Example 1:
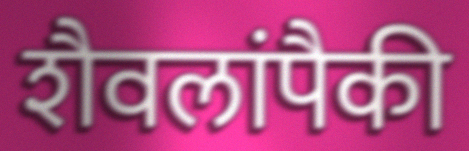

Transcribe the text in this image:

शैवलांपैकी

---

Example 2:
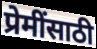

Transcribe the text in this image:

प्रेमींसाठी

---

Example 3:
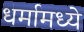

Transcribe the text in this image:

धर्मामध्ये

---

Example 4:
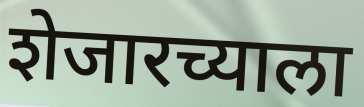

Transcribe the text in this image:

शेजारच्याला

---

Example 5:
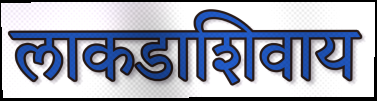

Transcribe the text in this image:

लाकडाशिवाय